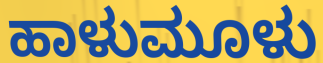
ಹಾಳುಮೂಳು